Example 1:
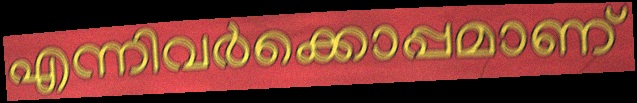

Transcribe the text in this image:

എന്നിവർക്കൊപ്പമാണ്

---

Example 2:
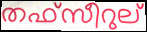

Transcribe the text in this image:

തഫ്സീറുല്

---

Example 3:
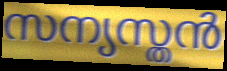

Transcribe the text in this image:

സന്യസ്തൻ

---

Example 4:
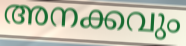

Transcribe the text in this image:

അനക്കവും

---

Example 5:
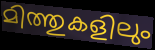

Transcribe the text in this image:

മിത്തുകളിലും